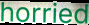
horried